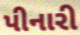
પીનારી